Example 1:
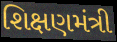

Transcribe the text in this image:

શિક્ષણમંત્રી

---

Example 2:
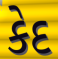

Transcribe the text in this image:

કેદ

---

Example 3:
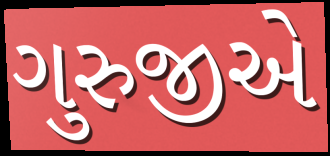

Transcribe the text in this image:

ગુરુજીએ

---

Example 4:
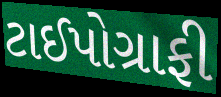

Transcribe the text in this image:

ટાઈપોગ્રાફી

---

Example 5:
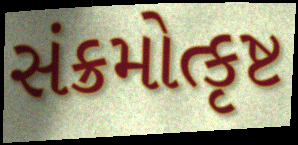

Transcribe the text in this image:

સંક્રમોત્કૃષ્ટ